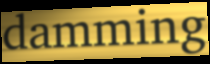
damming